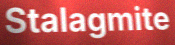
Stalagmite